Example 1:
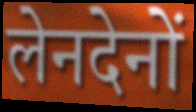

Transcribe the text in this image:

लेनदेनों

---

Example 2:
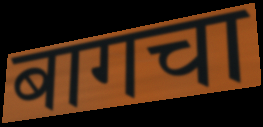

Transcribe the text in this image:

बागचा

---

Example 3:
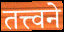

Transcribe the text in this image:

तत्त्वने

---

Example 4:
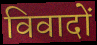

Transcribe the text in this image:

विवादों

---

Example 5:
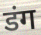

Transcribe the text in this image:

डंग